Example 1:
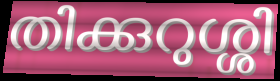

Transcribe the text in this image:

തിക്കുറുശ്ശി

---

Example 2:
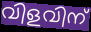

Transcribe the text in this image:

വിളവിന്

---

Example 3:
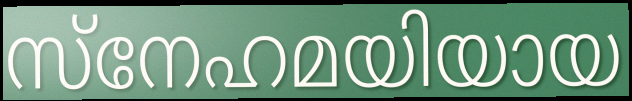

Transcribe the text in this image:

സ്നേഹമയിയായ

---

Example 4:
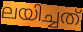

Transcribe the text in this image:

ലയിച്ചത്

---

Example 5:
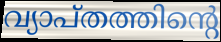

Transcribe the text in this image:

വ്യാപ്തത്തിന്റെ